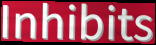
Inhibits